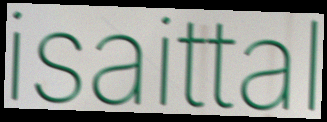
isaittal